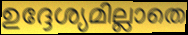
ഉദ്ദേശ്യമില്ലാതെ